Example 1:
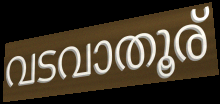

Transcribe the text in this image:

വടവാതൂര്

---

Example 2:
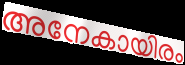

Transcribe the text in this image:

അനേകായിരം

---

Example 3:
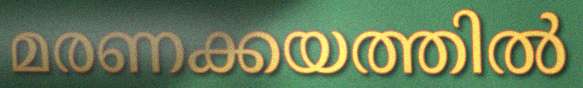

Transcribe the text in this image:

മരണക്കയത്തിൽ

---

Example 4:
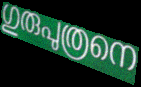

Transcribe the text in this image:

ഗുരുപുത്രനെ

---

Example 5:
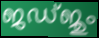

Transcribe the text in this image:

ജഡ്ജും